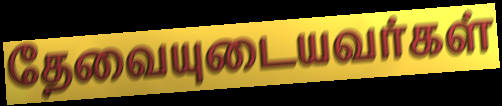
தேவையுடையவர்கள்